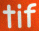
tif